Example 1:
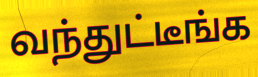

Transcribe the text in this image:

வந்துட்டீங்க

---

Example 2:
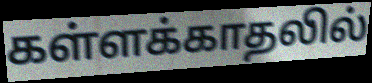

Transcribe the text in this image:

கள்ளக்காதலில்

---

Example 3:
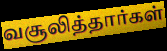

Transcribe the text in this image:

வசூலித்தார்கள்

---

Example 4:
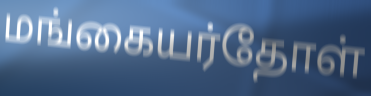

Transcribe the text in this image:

மங்கையர்தோள்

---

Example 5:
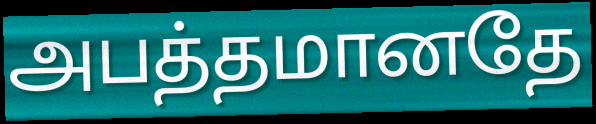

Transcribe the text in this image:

அபத்தமானதே